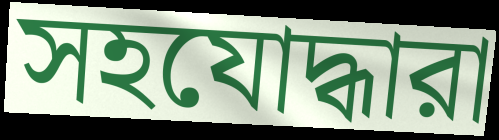
সহযোদ্ধারা